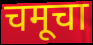
चमूचा